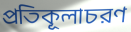
প্রতিকূলাচরণ